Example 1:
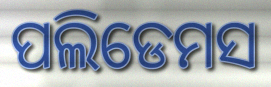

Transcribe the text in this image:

ପଲିଡେମସ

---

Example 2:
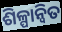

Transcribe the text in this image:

ଶିଳ୍ପାନ୍ବିତ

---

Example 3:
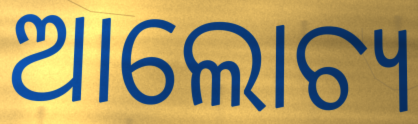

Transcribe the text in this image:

ଆଲୋଚ୍ୟ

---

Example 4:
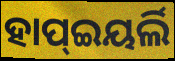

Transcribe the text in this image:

ହାପ୍ଇୟର୍ଲି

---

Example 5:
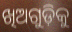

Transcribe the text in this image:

ଖିଅଗୁଡ଼ିକୁ